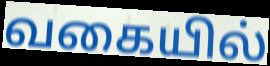
வகையில்